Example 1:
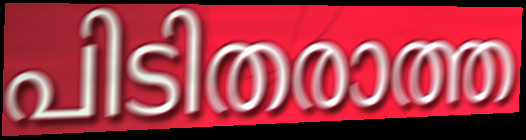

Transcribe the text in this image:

പിടിതരാത്ത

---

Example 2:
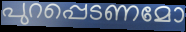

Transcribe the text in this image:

പുറപ്പെടണമോ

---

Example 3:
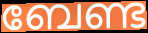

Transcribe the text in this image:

ബേണ്ട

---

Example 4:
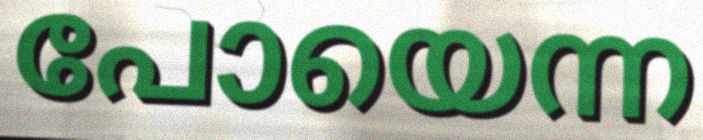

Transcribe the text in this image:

പോയെന്ന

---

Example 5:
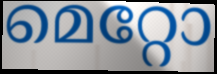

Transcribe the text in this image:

മെറ്റോ